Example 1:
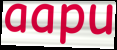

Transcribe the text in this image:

aapu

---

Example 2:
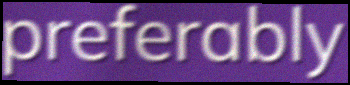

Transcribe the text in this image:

preferably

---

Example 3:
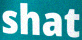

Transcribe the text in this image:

shat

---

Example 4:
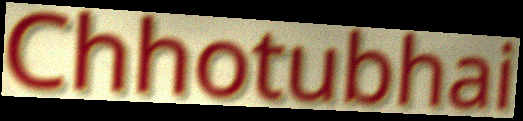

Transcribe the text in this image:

Chhotubhai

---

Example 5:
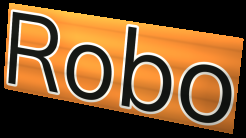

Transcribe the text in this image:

Robo